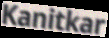
Kanitkar